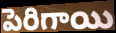
పెరిగాయి